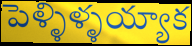
పెళ్ళిళ్ళయ్యాక